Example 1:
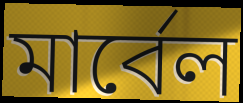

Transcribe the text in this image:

মার্বেল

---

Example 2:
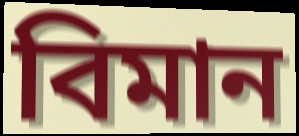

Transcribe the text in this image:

বিমান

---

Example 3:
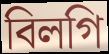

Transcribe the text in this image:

বিলগি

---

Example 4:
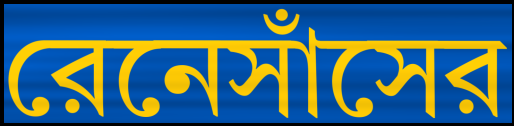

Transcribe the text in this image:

রেনেসাঁসের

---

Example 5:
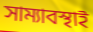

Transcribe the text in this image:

সাম্যাবস্থাই